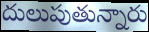
దులుపుతున్నారు